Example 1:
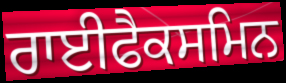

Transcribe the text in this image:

ਰਾਈਫੈਕਸਮਿਨ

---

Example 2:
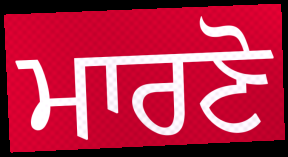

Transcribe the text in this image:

ਮਾਰਣੋ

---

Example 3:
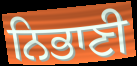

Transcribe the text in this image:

ਨਿਭਾਣੀ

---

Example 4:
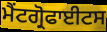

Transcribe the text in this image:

ਮੈਂਟਗ੍ਰੋਫਾਈਟਸ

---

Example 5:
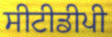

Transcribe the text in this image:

ਸੀਟੀਡੀਪੀ